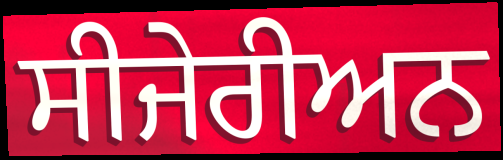
ਸੀਜੇਰੀਅਨ